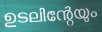
ഉടലിന്റേയും